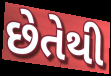
છેતેથી